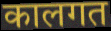
कालगत